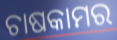
ଚାଷକାମର